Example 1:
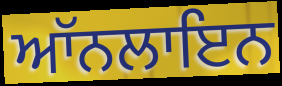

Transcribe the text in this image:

ਆੱਨਲਾਇਨ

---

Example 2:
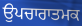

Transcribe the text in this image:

ਉਪਚਾਰਾਤਮਕ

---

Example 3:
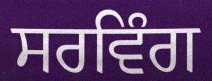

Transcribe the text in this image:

ਸਰਵਿੰਗ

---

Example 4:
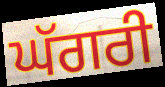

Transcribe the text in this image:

ਘੱਗਰੀ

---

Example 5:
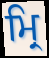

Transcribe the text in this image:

ਮ੍ਰਿ